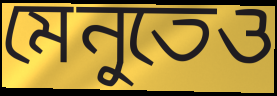
মেনুতেও